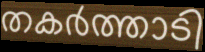
തകർത്താടി